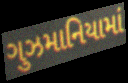
ગુઝમાનિયામાં